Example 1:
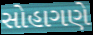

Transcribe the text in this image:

સોહાગણે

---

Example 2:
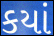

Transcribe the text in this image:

કયાં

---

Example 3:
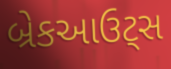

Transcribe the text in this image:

બ્રેકઆઉટ્સ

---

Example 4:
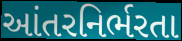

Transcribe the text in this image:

આંતરનિર્ભરતા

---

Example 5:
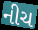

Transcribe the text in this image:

નીચ